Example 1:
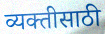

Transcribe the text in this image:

व्यक्तीसाठी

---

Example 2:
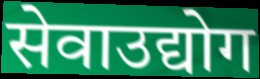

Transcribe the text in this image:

सेवाउद्योग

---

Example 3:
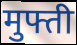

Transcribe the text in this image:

मुफ्ती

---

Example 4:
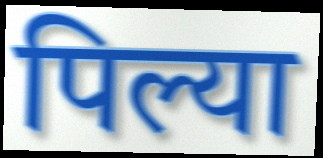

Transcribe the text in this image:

पिल्या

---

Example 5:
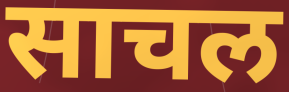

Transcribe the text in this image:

साचल